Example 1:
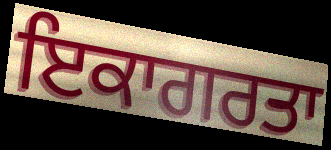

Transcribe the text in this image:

ਇਕਾਗਰਤਾ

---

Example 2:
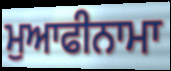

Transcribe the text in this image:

ਮੁਆਫੀਨਾਮਾ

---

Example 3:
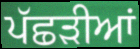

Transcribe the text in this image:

ਪੱਛੜੀਆਂ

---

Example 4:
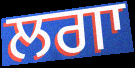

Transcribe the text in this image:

ਲਗਾ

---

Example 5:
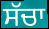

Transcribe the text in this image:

ਸੱਚਾ